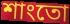
শাংতো